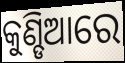
କୁଣ୍ଡିଆରେ